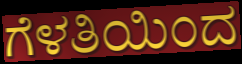
ಗೆಳತಿಯಿಂದ